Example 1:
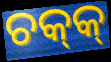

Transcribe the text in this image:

ଚକ୍‌କ୍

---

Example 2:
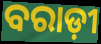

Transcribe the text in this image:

ବରାଡ଼ୀ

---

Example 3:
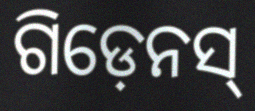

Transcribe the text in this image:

ଗିଡ଼େନସ୍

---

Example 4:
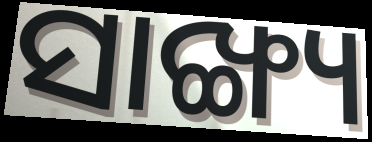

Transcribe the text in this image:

ସାଙ୍ଖ୍ୟ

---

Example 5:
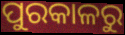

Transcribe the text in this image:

ପୁରକାଳରୁ